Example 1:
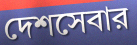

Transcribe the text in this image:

দেশসেবার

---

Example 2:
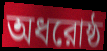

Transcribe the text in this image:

অধরোষ্ঠ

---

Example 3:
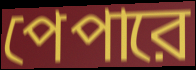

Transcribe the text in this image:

পেপারে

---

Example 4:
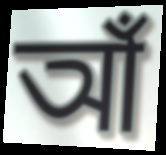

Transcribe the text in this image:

আঁ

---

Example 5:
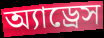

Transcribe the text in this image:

অ্যাড্রেস